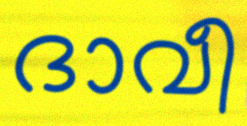
ദാവീ